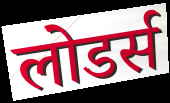
लोडर्स